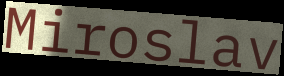
Miroslav